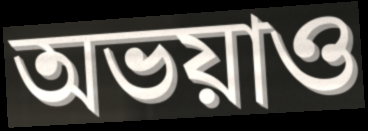
অভয়াও